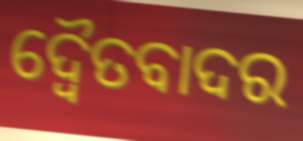
ଦ୍ୱୈତବାଦର